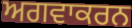
ਅਗਵਾਕਰਨ